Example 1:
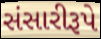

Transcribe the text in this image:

સંસારીરૂપે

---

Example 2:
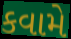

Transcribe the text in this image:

કવામે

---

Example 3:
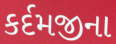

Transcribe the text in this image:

કર્દમજીના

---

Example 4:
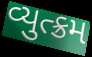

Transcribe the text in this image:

વ્યુત્ક્રમ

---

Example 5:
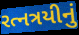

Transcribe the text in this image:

રત્નત્રયીનું